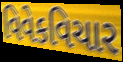
વિવેકવિચાર